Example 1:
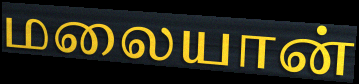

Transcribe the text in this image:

மலையான்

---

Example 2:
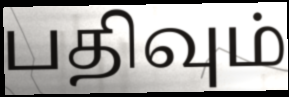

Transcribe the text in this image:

பதிவும்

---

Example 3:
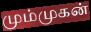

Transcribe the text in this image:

மும்முகன்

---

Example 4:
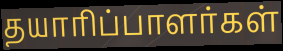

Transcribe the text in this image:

தயாரிப்பாளர்கள்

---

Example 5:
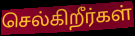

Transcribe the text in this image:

செல்கிறீர்கள்